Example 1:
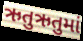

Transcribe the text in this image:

ઋતુઋતુમાં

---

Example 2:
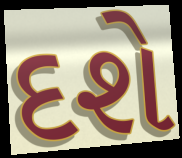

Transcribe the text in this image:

દશે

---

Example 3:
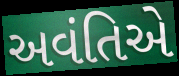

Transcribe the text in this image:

અવંતિએ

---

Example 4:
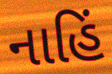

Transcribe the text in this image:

નાહિં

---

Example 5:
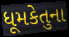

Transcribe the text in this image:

ધૂમકેતુના